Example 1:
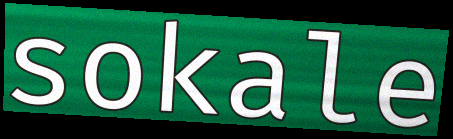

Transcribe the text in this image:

sokale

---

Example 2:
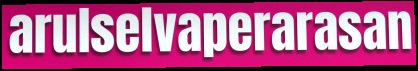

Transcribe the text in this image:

arulselvaperarasan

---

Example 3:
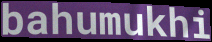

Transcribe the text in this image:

bahumukhi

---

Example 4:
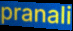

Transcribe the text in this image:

pranali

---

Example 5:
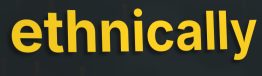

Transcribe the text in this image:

ethnically